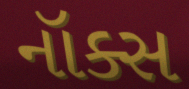
નૉક્સ